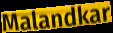
Malandkar